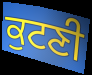
ਕੁਟਣੀ